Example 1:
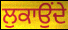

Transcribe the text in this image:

ਲੁਕਾਉਂਦੇ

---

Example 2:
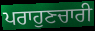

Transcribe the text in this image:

ਪਰਾਹੁਣਚਾਰੀ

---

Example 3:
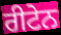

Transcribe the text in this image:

ਰੀਟੇਨ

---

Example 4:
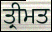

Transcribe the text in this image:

ਤ੍ਰੀਮਤ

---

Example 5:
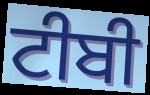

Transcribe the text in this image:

ਟੀਬੀ